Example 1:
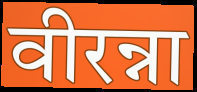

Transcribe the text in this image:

वीरन्ना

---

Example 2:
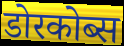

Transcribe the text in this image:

डोरकोब्स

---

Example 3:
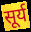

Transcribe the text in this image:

सूर्य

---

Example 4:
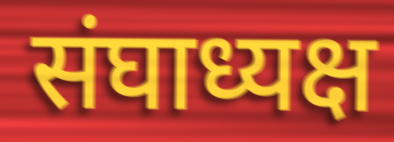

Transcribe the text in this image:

संघाध्यक्ष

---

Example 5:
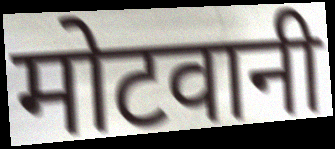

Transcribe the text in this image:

मोटवानी